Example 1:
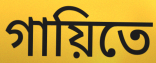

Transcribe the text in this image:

গায়িতে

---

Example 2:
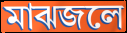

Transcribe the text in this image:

মাঝজলে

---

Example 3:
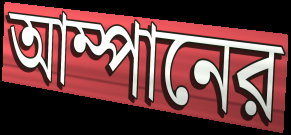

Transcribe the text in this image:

আম্পানের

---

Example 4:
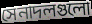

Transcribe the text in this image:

সেনাদলগুলো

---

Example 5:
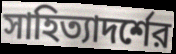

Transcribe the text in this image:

সাহিত্যাদর্শের